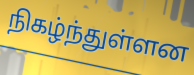
நிகழ்ந்துள்ளன